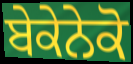
ਬੇਕੇਨੇਕੋ